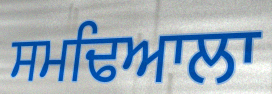
ਸਮਢਿਆਲਾ